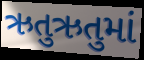
ઋતુઋતુમાં